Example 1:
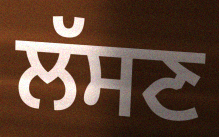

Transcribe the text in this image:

ਲੱਸਣ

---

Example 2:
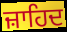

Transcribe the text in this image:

ਜ਼ਾਹਿਦ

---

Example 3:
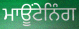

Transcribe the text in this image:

ਮਾਊਂਟੇਨਿੰਗ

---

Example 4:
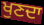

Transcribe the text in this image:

ਖੁਣਦਾ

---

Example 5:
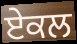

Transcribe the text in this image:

ਏਕਲ